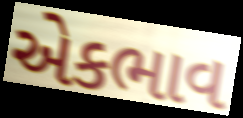
એકભાવ